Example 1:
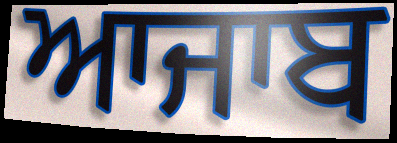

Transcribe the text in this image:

ਆਜਾਬ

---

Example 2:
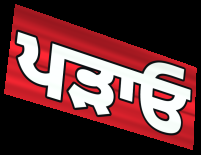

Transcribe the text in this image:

ਪੜਾਓ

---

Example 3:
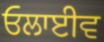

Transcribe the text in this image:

ਓਲਾਈਵ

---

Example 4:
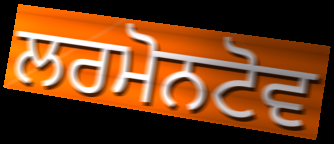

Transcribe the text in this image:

ਲਰਮੋਨਟੋਵ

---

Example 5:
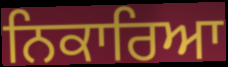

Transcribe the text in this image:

ਨਿਕਾਰਿਆ